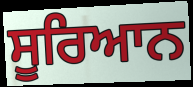
ਸੂਰਿਆਨ